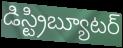
డిస్ట్రిబ్యూటర్